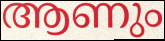
ആണും